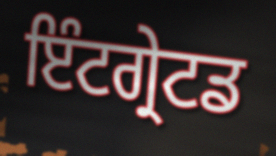
ਇੰਟਗ੍ਰੇਟਡ